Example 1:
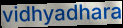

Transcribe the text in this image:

vidhyadhara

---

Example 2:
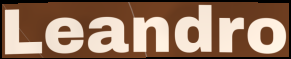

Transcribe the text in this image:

Leandro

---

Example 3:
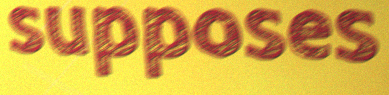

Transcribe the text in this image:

supposes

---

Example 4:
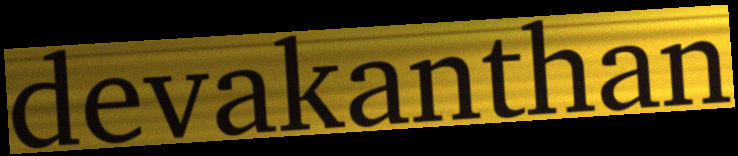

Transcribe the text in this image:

devakanthan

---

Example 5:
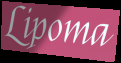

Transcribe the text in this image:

Lipoma